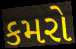
કમરો